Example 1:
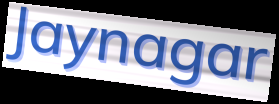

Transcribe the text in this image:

Jaynagar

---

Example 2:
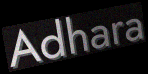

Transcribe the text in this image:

Adhara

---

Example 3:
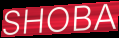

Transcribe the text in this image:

SHOBA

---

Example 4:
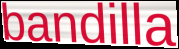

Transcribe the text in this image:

bandilla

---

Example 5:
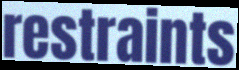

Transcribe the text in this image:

restraints